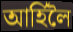
আৰ্হিলৈ